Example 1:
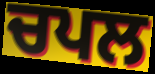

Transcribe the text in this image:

ਚਪਲ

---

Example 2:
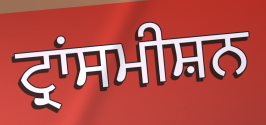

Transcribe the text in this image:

ਟ੍ਰਾਂਸਮੀਸ਼ਨ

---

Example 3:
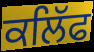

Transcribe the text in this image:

ਕਲਿੱਫ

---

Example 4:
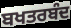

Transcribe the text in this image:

ਬਖਤਰਬੰਦ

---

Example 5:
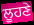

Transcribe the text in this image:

ਲੂਹਣੇ